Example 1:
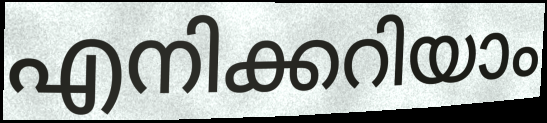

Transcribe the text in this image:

എനിക്കറിയാം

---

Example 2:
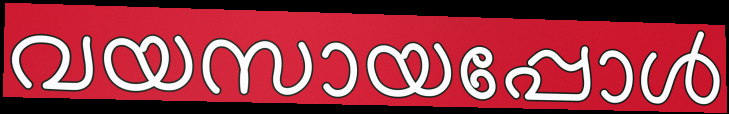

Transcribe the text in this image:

വയസായപ്പോൾ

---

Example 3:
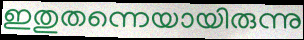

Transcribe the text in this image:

ഇതുതന്നെയായിരുന്നു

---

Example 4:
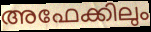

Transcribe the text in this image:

അഫേക്കിലും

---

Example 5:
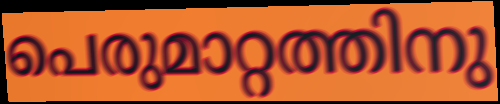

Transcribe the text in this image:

പെരുമാറ്റത്തിനു